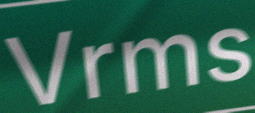
Vrms